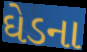
ઘેડના